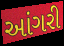
આંગરી